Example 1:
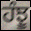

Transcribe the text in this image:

ਹੰਝੂ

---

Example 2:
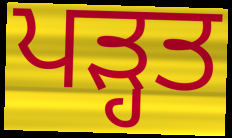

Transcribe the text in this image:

ਪਡ਼੍ਹਤ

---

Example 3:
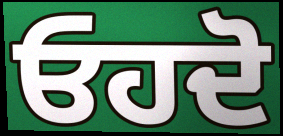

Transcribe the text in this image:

ਓਹਦੋ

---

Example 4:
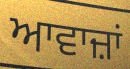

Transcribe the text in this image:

ਆਵਾਜ਼ਾਂ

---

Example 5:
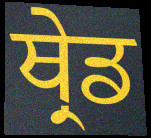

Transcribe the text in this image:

ਥ੍ਰੇਡ